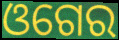
ଓଗେର